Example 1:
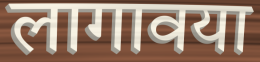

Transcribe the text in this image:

लागावया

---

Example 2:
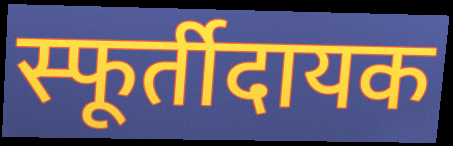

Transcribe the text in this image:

स्फूर्तीदायक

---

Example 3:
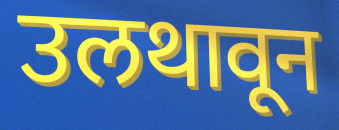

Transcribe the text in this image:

उलथावून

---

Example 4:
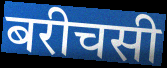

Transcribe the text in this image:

बरीचसी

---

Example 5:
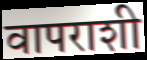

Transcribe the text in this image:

वापराशी